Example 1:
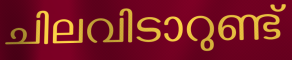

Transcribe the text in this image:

ചിലവിടാറുണ്ട്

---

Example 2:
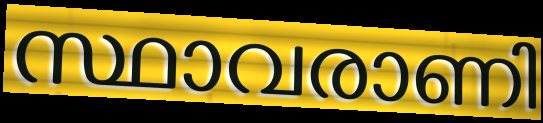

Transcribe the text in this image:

സ്ഥാവരാണി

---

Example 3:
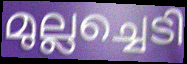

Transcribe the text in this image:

മുല്ലച്ചെടി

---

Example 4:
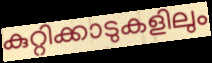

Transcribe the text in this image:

കുറ്റിക്കാടുകളിലും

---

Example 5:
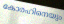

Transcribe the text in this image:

കോരഹിനെയും